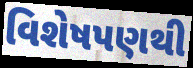
વિશેષપણથી